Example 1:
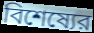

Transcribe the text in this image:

বিশেষ্যের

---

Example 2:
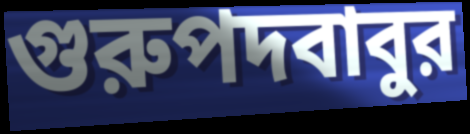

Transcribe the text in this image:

গুরুপদবাবুর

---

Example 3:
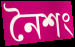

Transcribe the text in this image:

নৈশং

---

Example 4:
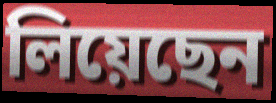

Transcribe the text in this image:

লিয়েছেন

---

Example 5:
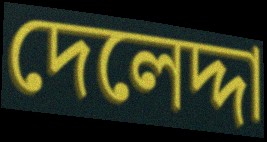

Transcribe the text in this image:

দেলেদ্দা